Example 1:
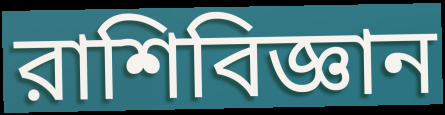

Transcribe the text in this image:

রাশিবিজ্ঞান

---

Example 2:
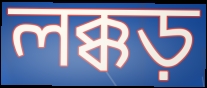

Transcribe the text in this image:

লক্কড়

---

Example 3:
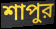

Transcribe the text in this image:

শাপুর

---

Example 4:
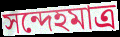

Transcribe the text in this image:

সন্দেহমাত্র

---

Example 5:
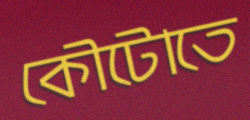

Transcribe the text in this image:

কৌটোতে